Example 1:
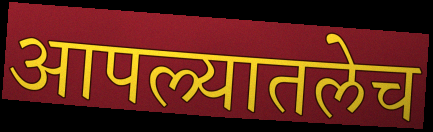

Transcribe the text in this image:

आपल्यातलेच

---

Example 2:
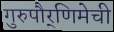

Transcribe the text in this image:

गुरुपौर्णिमेची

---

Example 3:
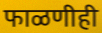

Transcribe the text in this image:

फाळणीही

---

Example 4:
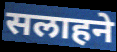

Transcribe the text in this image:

सलाहने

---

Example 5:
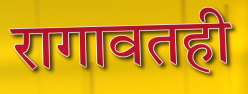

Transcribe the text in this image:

रागावतही